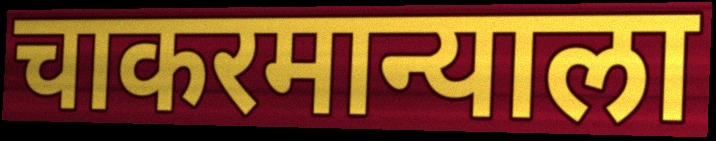
चाकरमान्याला